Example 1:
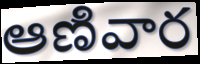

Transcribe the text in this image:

ఆణివార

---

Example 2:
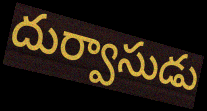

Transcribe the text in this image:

దుర్వాసుడు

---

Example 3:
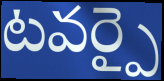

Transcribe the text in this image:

టవర్పై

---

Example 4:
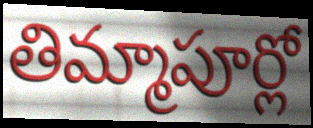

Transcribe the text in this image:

తిమ్మాపూర్లో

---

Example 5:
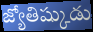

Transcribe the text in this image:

జ్యోతిష్కుడు